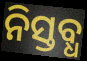
ନିସ୍ତବ୍ଧ